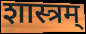
शास्त्रम्